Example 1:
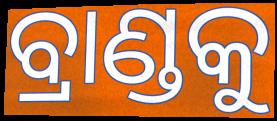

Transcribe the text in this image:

ବ୍ରାଣ୍ଡକୁ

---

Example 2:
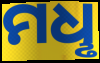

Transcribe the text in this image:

ମଧୢ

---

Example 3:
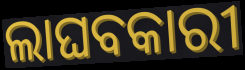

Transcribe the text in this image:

ଲାଘବକାରୀ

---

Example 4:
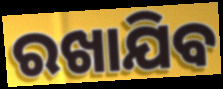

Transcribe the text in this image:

ରଖାଯିବ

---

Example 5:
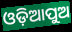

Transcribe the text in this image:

ଓଡ଼ିଆପୁଅ